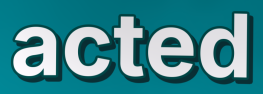
acted